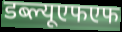
डब्ल्यूएफएफ